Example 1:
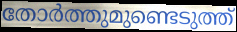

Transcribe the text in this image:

തോർത്തുമുണ്ടെടുത്ത്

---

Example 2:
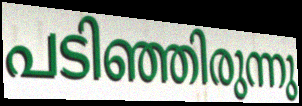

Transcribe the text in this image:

പടിഞ്ഞിരുന്നു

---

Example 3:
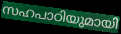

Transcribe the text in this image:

സഹപാഠിയുമായി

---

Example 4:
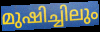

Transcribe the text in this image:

മുഷിച്ചിലും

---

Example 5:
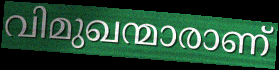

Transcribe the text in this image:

വിമുഖന്മാരാണ്